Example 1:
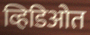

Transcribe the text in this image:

व्हिडिओत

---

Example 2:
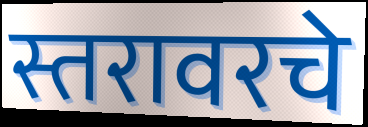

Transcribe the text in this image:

स्तरावरचे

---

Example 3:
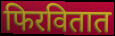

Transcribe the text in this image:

फिरवितात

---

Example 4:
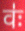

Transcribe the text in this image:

वः॑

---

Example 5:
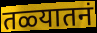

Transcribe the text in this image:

तळ्यातनं